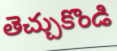
తెచ్చుకొండి